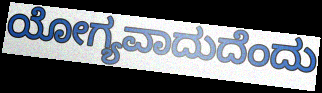
ಯೋಗ್ಯವಾದುದೆಂದು